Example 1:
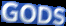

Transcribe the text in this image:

GODS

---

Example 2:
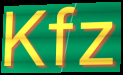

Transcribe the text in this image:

Kfz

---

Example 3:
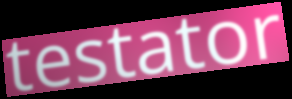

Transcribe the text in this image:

testator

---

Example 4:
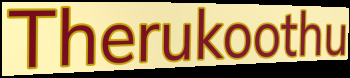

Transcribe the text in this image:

Therukoothu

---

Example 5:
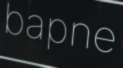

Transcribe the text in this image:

bapne